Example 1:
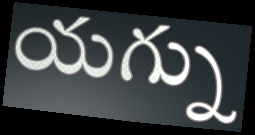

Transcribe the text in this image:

యగ్ను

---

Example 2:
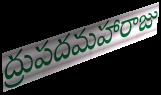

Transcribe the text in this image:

ద్రుపదమహారాజు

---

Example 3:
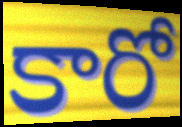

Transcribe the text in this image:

కారో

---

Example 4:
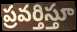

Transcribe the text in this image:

ప్రవర్తిస్తూ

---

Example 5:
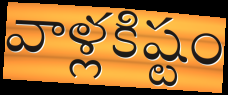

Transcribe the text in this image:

వాళ్లకిష్టం